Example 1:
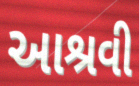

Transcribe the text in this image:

આશ્રવી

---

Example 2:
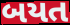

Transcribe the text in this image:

બયત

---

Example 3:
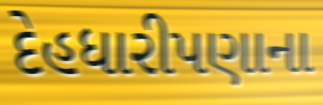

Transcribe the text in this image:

દેહધારીપણાના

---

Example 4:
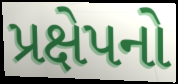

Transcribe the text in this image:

પ્રક્ષેપનો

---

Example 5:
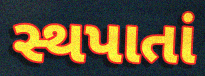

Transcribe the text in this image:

સ્થપાતાં